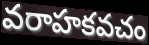
వరాహకవచం